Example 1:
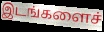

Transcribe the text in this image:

இடங்களைச்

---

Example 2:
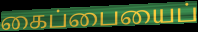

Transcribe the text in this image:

கைப்பையைப்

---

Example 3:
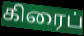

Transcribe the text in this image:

கிரைப்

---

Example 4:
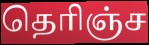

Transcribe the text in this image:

தெரிஞ்ச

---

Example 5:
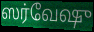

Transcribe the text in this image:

ஸர்வேஷு